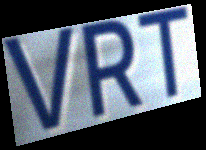
VRT